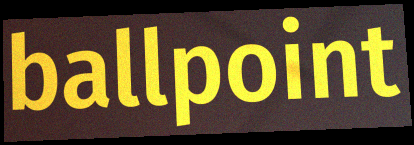
ballpoint